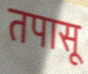
तपासू